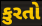
કુરતો